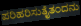
ಪರಿಹರಿಸುತೈತಂದನು